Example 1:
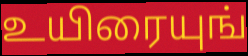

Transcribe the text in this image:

உயிரையுங்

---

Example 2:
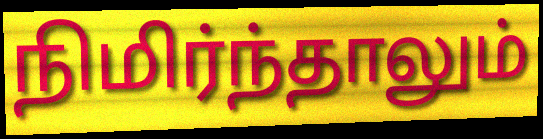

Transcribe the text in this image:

நிமிர்ந்தாலும்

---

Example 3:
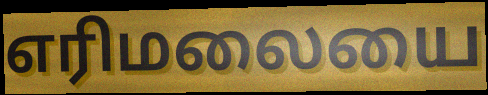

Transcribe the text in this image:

எரிமலையை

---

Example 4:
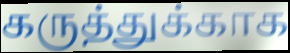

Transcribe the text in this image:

கருத்துக்காக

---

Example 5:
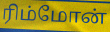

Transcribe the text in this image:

ரிம்மோன்